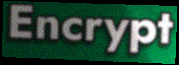
Encrypt